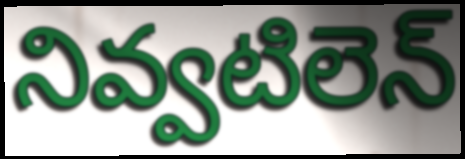
నివ్వటిలెన్